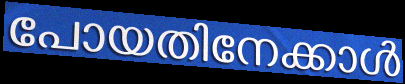
പോയതിനേക്കാൾ